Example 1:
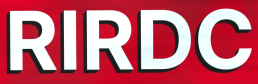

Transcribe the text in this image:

RIRDC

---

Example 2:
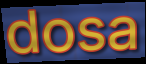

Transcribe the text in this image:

dosa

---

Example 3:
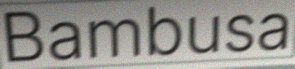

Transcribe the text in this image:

Bambusa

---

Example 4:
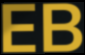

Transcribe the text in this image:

EB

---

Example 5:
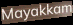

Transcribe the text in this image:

Mayakkam